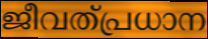
ജീവത്പ്രധാന